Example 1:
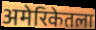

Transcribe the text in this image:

अमेरिकेतला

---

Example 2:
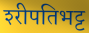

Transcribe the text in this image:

श्रीपतिभट्ट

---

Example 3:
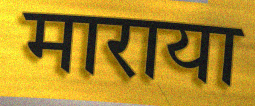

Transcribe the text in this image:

माराया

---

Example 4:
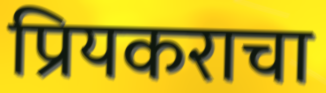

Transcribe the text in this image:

प्रियकराचा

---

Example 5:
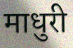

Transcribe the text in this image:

माधुरी